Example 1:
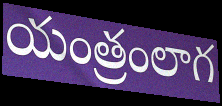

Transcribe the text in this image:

యంత్రంలాగ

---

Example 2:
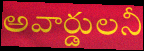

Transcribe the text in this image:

అవార్డులనీ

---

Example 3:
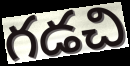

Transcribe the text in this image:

గడచి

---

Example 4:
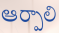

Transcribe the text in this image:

ఆర్పాలి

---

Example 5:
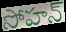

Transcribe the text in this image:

సోహన్